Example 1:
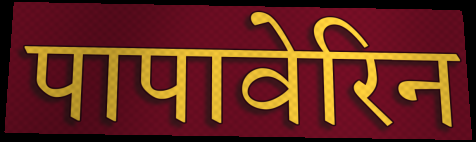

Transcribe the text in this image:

पापावेरिन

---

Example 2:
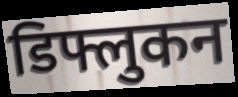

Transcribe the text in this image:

डिफ्लुकन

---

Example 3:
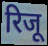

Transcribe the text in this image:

रिजू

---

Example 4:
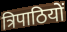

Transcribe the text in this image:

त्रिपाठियों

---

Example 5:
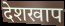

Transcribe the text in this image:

देशखाप